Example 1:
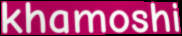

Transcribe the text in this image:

khamoshi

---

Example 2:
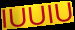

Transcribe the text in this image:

IUUIU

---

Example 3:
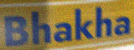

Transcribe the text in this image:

Bhakha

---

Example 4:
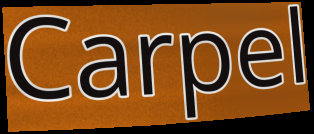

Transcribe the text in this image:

Carpel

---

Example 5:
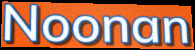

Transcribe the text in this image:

Noonan